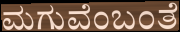
ಮಗುವೆಂಬಂತೆ